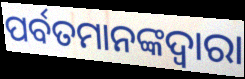
ପର୍ବତମାନଙ୍କଦ୍ଵାରା